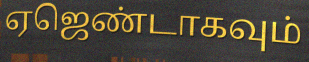
ஏஜெண்டாகவும்